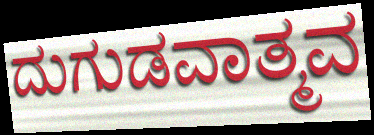
ದುಗುಡವಾತ್ಮವ